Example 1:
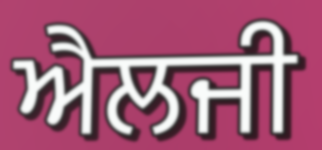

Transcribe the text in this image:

ਐਲਜੀ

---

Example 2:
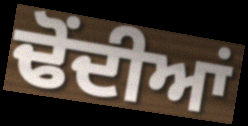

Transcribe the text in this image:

ਢੋਂਦੀਆਂ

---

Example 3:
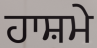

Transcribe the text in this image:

ਹਾਸ਼ਮੇ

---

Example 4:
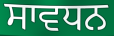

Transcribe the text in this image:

ਸਾਵਧਨ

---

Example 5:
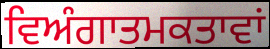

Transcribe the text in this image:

ਵਿਅੰਗਾਤਮਕਤਾਵਾਂ